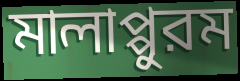
মালাপ্পুরম